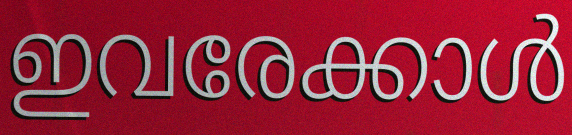
ഇവരേക്കാൾ